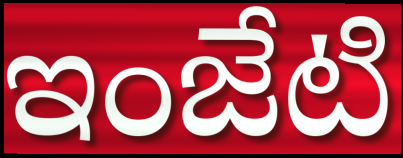
ఇంజేటి